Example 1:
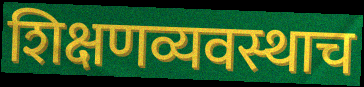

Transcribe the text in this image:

शिक्षणव्यवस्थाच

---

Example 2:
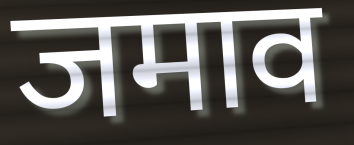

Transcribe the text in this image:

जमाव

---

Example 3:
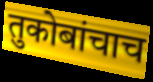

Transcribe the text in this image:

तुकोबांचाच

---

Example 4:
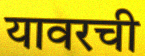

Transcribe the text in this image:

यावरची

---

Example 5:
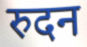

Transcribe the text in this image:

रुदन